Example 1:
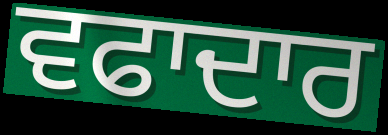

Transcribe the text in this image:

ਵਫਾਦਾਰ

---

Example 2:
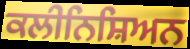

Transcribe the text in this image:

ਕਲੀਨਿਸ਼ਿਅਨ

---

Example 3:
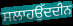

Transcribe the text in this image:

ਸਲਾਹਉੱਦਦੀਨ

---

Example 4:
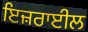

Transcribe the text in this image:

ਇਜ਼ਰਾਈਲ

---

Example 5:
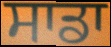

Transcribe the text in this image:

ਸਾਡਾ